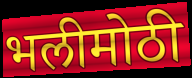
भलीमोठी